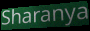
Sharanya